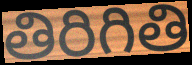
తిరిగితి